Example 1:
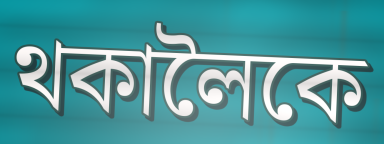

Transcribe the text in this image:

থকালৈকে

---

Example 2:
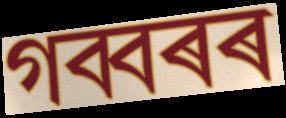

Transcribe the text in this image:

গব্বৰৰ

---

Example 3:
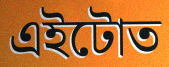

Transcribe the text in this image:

এইটোত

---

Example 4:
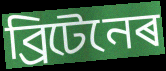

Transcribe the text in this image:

ব্ৰিটেনেৰ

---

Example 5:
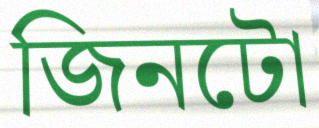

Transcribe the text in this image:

জিনটো